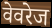
वेवरेज